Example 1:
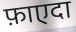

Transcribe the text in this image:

फ़ाएदा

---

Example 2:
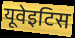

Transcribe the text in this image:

यूवेइटिस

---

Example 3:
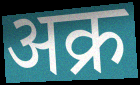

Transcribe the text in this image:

अक्र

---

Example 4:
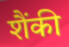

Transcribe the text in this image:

शैंकी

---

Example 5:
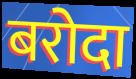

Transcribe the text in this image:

बरोदा